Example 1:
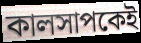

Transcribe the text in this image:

কালসাপকেই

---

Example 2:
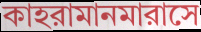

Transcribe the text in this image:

কাহরামানমারাসে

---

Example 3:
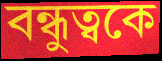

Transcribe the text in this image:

বন্ধুত্বকে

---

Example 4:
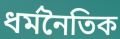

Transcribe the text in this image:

ধর্মনৈতিক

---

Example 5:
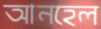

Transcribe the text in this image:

আনহেল